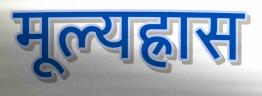
मूल्यह्रास